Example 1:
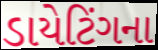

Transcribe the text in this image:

ડાયેટિંગના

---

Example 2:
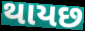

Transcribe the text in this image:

થાયછ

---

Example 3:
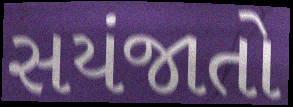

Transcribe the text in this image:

સયંજાતો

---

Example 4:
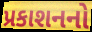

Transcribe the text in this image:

પ્રકાશનનો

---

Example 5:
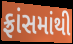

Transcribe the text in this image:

ફ્રાંસમાંથી